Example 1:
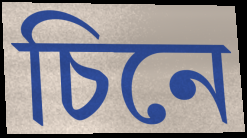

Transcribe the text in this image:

চিনে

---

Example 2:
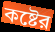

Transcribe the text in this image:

কষ্টের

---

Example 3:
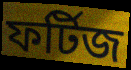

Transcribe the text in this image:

ফর্টিজ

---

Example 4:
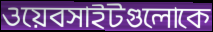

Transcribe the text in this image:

ওয়েবসাইটগুলোকে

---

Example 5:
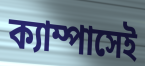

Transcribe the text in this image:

ক্যাম্পাসেই